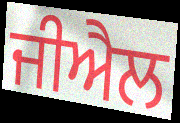
ਜੀਐਲ